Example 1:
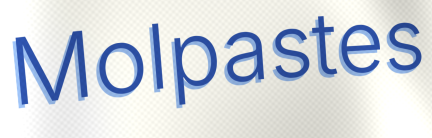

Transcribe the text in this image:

Molpastes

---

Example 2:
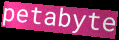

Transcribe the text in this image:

petabyte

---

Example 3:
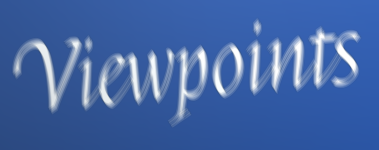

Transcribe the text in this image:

Viewpoints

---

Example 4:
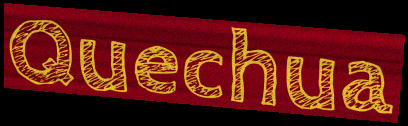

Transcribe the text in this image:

Quechua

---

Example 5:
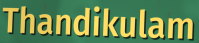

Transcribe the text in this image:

Thandikulam